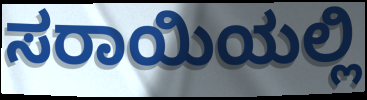
ಸರಾಯಿಯಲ್ಲಿ